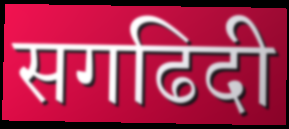
सगढिदी